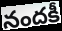
నందకీ